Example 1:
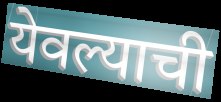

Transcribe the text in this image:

येवल्याची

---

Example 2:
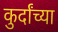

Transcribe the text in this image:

कुर्दांच्या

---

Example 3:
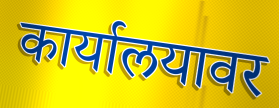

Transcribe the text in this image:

कार्यालयावर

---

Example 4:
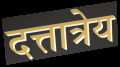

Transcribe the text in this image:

दत्तात्रेय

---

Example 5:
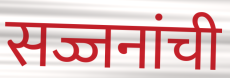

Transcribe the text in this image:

सज्जनांची